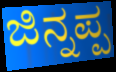
ಜಿನ್ನಪ್ಪ